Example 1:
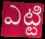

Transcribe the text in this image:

ఎట్టి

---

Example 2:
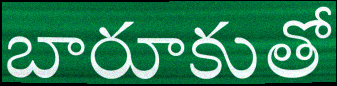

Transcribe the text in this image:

బారూకుతో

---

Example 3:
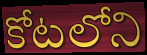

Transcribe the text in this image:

కోటలోని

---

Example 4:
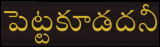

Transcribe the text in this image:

పెట్టకూడదనీ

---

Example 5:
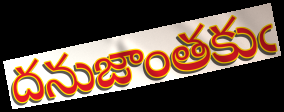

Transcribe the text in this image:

దనుజాంతకుఁ